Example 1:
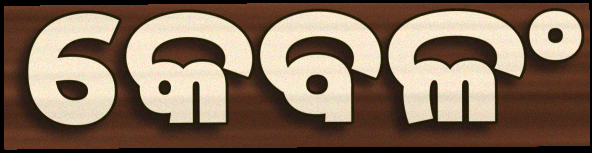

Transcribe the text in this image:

କେବଳଂ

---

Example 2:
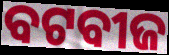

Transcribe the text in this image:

ବଟବୀଜ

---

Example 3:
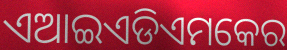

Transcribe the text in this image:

ଏଆଇଏଡିଏମକେର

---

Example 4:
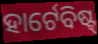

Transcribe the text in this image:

ହାର୍ଟେବିଷ୍ଟ୍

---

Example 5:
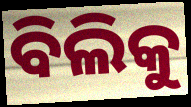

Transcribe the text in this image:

ବିଲିକୁ